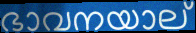
ഭാവനയാല്